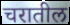
चरातील